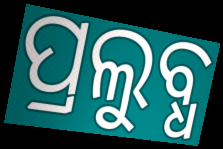
ପ୍ରଲୁବ୍ଧ